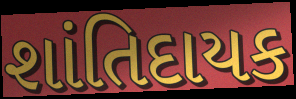
શાંતિદાયક